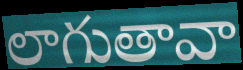
లాగుతావా